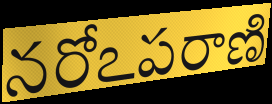
నరోఽపరాణి